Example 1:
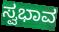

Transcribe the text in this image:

ಸ್ವಭಾವ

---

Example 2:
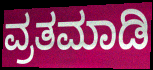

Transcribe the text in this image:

ವ್ರತಮಾಡಿ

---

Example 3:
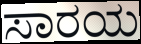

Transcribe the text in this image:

ಸಾರಯ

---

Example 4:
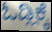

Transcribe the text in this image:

ಓಡ್ಲಿಕ್ಕೆ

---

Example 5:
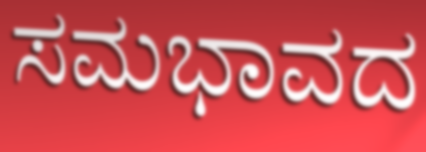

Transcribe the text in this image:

ಸಮಭಾವದ